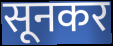
सूनकर